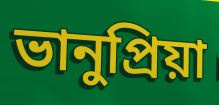
ভানুপ্রিয়া